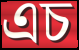
এচ